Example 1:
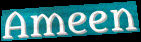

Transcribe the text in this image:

Ameen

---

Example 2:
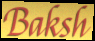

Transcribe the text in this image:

Baksh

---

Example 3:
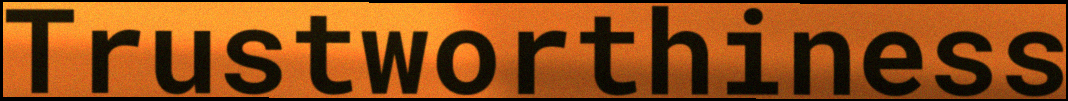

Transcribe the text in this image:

Trustworthiness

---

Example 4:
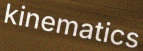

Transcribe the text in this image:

kinematics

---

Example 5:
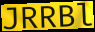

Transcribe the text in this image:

JRRBl